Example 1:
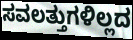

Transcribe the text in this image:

ಸವಲತ್ತುಗಳಿಲ್ಲದ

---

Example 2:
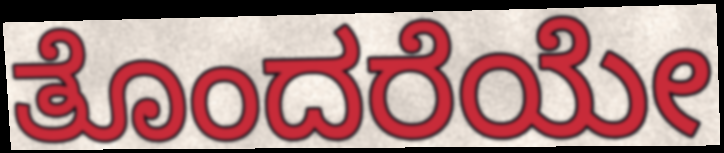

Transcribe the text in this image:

ತೊಂದರೆಯೇ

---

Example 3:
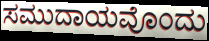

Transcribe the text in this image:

ಸಮುದಾಯವೊಂದು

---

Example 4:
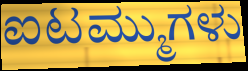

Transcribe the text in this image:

ಐಟಮ್ಮುಗಳು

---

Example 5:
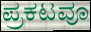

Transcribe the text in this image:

ಪ್ರಕಟವೂ